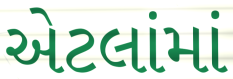
એટલાંમાં